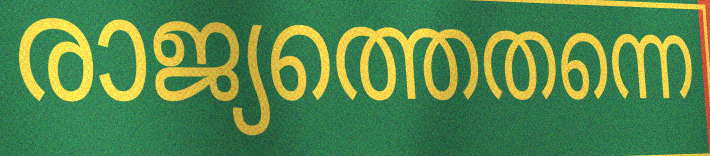
രാജ്യത്തെതന്നെ